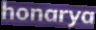
honarya